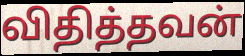
விதித்தவன்